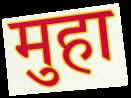
मुहा